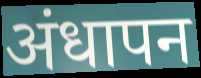
अंधापन